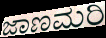
ಜಾಣಮರಿ